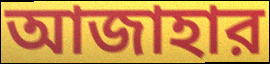
আজাহার